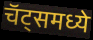
चॅट्समध्ये